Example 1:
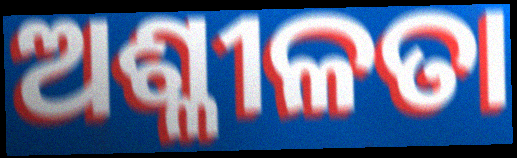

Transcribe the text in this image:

ଅଶ୍ଳୀଳତା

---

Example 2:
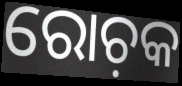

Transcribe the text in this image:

ରୋଚ଼କ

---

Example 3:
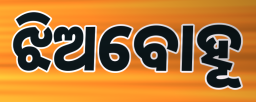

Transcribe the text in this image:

ଝିଅବୋହୂ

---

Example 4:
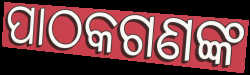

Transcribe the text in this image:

ପାଠକଗଣଙ୍କ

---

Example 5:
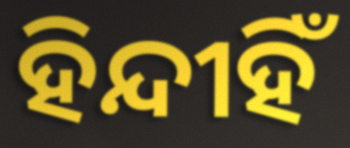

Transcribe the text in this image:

ହିନ୍ଦୀହିଁ